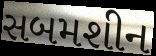
સબમશીન